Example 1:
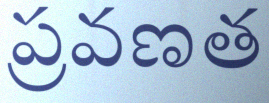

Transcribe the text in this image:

ప్రవణత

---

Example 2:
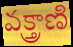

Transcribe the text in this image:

వక్త్రాణి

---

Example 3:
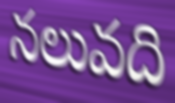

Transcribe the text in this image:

నలువది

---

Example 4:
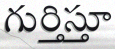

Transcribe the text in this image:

గుర్తిస్తూ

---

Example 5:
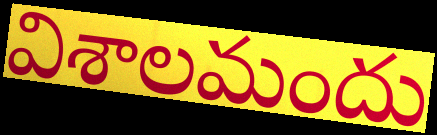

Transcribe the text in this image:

విశాలమందు